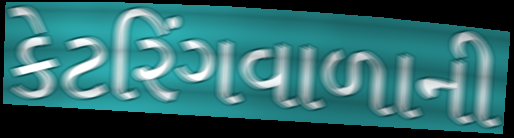
કેટરિંગવાળાની